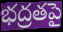
భద్రతపై